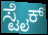
ಸ್ಟೈಕ್